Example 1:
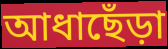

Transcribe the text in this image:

আধাছেঁড়া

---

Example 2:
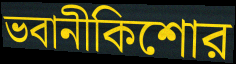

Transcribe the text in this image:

ভবানীকিশোর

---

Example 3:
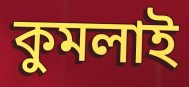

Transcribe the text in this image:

কুমলাই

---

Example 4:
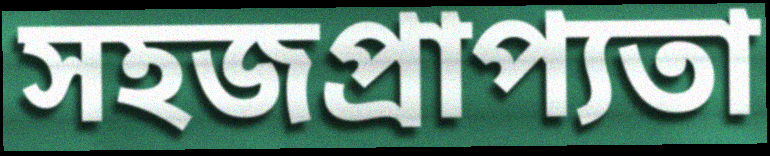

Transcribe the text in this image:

সহজপ্রাপ্যতা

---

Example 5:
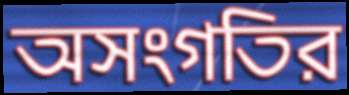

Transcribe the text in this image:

অসংগতির